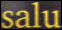
salu